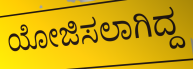
ಯೋಜಿಸಲಾಗಿದ್ದ